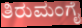
ತಿರುಮಂಗೈ